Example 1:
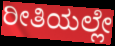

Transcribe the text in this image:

ರೀತಿಯಲ್ಲೇ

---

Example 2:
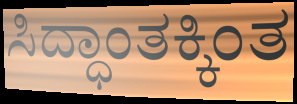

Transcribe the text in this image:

ಸಿದ್ಧಾಂತಕ್ಕಿಂತ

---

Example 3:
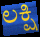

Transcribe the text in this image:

ಲಕ್ಷಿ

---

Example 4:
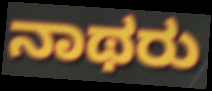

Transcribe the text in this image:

ನಾಥರು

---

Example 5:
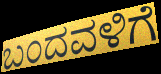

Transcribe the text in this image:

ಬಂದವಳಿಗೆ